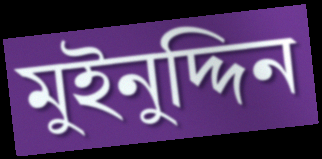
মুইনুদ্দিন